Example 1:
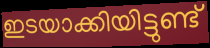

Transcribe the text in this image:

ഇടയാക്കിയിട്ടുണ്ട്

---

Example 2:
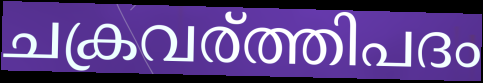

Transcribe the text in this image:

ചക്രവര്ത്തിപദം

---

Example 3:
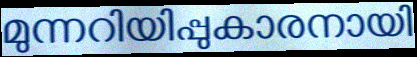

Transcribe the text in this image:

മുന്നറിയിപ്പുകാരനായി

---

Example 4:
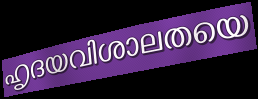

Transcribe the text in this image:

ഹൃദയവിശാലതയെ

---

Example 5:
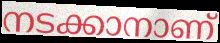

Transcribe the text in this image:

നടക്കാനാണ്